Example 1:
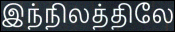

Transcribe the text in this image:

இந்நிலத்திலே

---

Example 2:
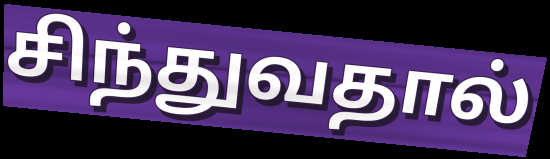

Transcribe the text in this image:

சிந்துவதால்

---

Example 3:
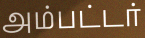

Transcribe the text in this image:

அம்பட்டர்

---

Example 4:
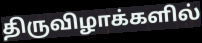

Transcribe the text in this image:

திருவிழாக்களில்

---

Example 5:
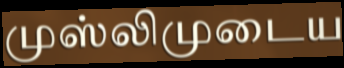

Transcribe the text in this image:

முஸ்லிமுடைய